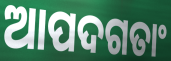
ଆପଦଗତାଂ